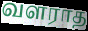
வளராத